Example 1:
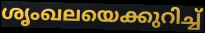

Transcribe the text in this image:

ശൃംഖലയെക്കുറിച്ച്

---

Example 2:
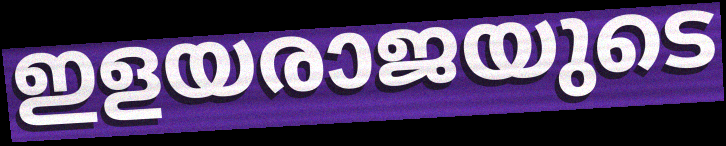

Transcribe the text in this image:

ഇളയരാജയുടെ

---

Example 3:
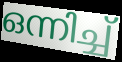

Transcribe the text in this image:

ഒന്നിച്ച്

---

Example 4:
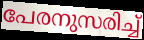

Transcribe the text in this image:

പേരനുസരിച്ച്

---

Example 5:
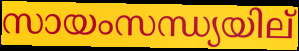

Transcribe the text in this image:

സായംസന്ധ്യയില്